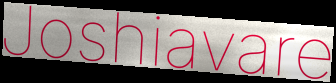
Joshiavare